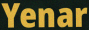
Yenar